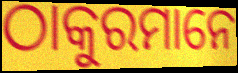
ଠାକୁରମାନେ